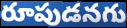
రూపుడనగు